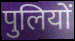
पुलियों